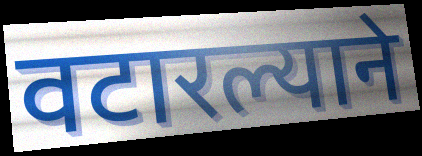
वटारल्याने